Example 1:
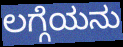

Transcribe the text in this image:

ಲಗ್ಗೆಯನು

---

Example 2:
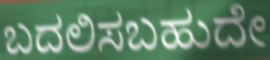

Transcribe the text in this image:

ಬದಲಿಸಬಹುದೇ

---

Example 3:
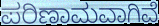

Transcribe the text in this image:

ಪರಿಣಾಮವಾಗಿವೆ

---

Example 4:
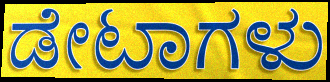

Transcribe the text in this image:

ಡೇಟಾಗಳು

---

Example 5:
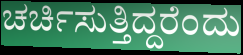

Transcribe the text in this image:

ಚರ್ಚಿಸುತ್ತಿದ್ದರೆಂದು